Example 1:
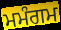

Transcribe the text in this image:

ਮਮੰਗਮ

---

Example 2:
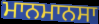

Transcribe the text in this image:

ਮਾਨਮਾਨਸਾ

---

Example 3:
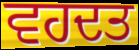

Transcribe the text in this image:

ਵਹਦਤ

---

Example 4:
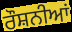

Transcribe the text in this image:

ਰੌਸ਼ਨੀਆਂ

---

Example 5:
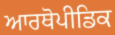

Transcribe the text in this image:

ਆਰਥੋਪੀਡਿਕ